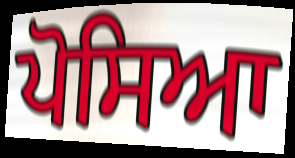
ਪੋਸਿਆ